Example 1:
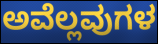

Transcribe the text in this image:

ಅವೆಲ್ಲವುಗಳ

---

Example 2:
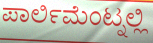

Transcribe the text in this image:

ಪಾರ್ಲಿಮೆಂಟ್ನಲ್ಲಿ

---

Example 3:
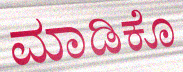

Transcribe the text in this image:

ಮಾಡಿಕೊ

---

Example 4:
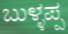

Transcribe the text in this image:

ಬುಳ್ಳಪ್ಪ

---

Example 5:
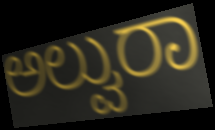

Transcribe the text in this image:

ಅಲ್ವುರಾ